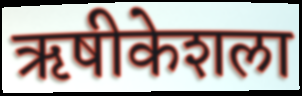
ऋषीकेशला